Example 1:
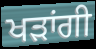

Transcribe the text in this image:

ਖੜਾਂਗੀ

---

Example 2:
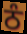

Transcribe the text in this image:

ਠੰ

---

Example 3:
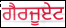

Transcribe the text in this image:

ਗੈਰਜੂਏਟ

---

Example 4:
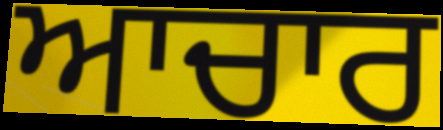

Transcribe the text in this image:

ਆਚਾਰ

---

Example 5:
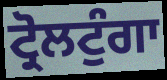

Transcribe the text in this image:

ਟ੍ਰੋਲਟੁੰਗਾ